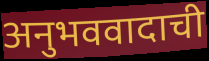
अनुभववादाची